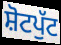
ਸ਼ੋਟਪੁੱਟ